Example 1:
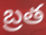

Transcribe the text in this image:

బ్రత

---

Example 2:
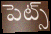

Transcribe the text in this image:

పెట్స్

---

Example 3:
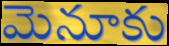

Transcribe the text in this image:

మెనూకు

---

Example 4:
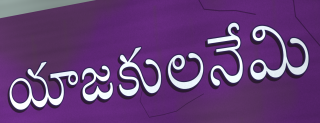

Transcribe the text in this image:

యాజకులనేమి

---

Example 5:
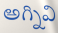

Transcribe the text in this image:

అగ్నివి